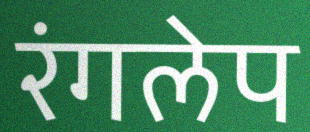
रंगलेप